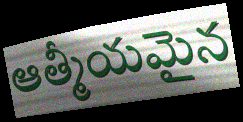
ఆత్మీయమైన